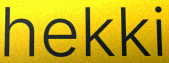
hekki